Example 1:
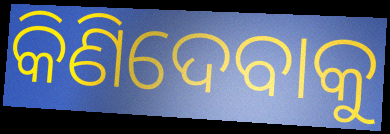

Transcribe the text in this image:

କିଣିଦେବାକୁ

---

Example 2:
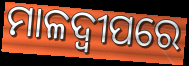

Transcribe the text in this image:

ମାଳଦ୍ବୀପରେ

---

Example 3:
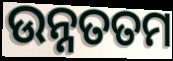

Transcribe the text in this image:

ଉନ୍ନତତମ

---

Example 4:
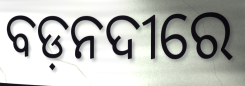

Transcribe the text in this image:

ବଡ଼ନଦୀରେ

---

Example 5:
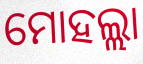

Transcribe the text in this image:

ମୋହଲ୍ଲା